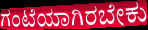
ಗಂಟೆಯಾಗಿರಬೇಕು